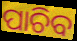
ପାଚିବ